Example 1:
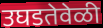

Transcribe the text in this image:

उघडतेवेळी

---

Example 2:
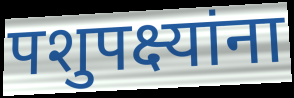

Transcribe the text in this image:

पशुपक्ष्यांना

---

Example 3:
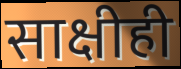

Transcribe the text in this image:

साक्षीही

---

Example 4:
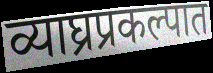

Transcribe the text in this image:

व्याघ्रप्रकल्पात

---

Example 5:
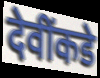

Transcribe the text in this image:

देवींकडे